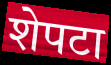
शेपटा